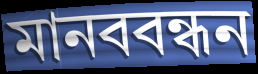
মানববন্ধন